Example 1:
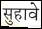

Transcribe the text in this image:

सुहावे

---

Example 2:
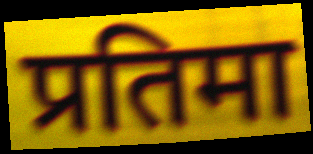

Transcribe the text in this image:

प्रतिमा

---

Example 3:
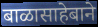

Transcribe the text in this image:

बाळासाहेबाने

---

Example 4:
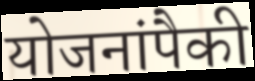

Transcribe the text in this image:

योजनांपैकी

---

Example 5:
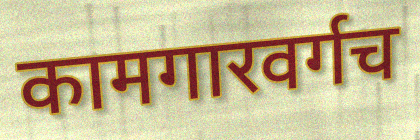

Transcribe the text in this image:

कामगारवर्गच